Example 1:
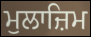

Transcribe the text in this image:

ਮੁਲਾਜ਼ਿਮ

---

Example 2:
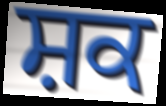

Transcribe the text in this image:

ਸ਼ਕ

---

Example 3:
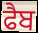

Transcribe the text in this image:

ਫੈਬ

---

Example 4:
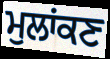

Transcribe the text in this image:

ਮੁਲਾਂਕਣ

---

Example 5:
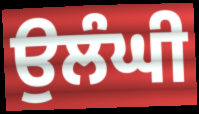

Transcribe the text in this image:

ਉਲੰਘੀ